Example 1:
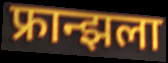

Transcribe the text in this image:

फ्रान्झला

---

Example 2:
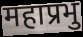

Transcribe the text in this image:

महाप्रभु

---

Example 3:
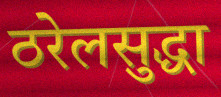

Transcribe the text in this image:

ठरेलसुद्धा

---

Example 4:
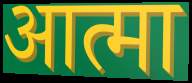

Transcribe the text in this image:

आत्मा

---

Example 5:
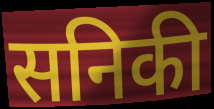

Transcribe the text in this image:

सनिकी